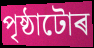
পৃষ্ঠাটোৰ